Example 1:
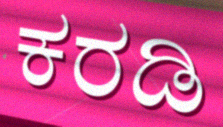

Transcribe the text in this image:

ಕರಡಿ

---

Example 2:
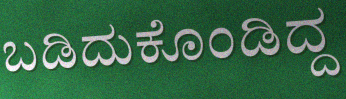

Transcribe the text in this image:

ಬಡಿದುಕೊಂಡಿದ್ದ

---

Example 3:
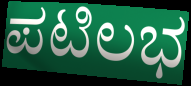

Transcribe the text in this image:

ಪಟಿಲಭ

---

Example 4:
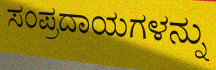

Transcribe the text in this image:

ಸಂಪ್ರದಾಯಗಳನ್ನು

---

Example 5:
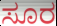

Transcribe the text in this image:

ಸೂರ